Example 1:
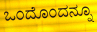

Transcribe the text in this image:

ಒಂದೊಂದನ್ನೂ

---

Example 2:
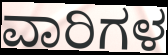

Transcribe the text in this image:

ವಾರಿಗಳ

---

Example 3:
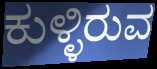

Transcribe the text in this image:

ಕುಳ್ಳಿರುವ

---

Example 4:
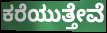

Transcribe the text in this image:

ಕರೆಯುತ್ತೇವೆ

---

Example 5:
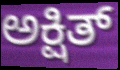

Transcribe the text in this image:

ಅಕ್ಷಿತ್